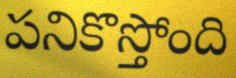
పనికొస్తోంది